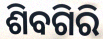
ଶିବଗିରି